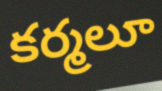
కర్మలూ